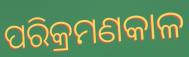
ପରିକ୍ରମଣକାଳ